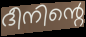
ദീനിന്റെ